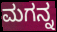
ಮಗನ್ನ